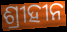
ଶ୍ରୀହୀନ